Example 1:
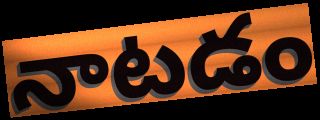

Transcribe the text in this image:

నాటడం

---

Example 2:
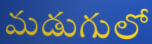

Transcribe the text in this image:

మడుగులో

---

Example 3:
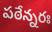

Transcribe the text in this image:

పఠేన్నరః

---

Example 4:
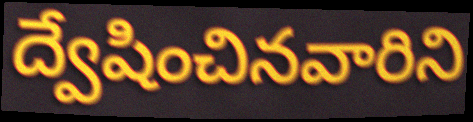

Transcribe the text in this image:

ద్వేషించినవారిని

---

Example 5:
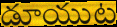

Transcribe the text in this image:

డూయుట